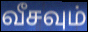
வீசவும்